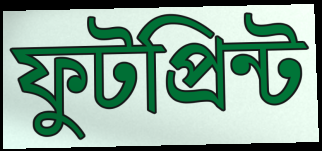
ফুটপ্রিন্ট